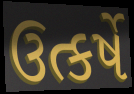
ઉત્કર્ષે